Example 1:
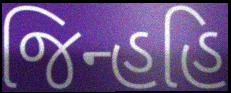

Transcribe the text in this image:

જિન્હહિ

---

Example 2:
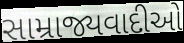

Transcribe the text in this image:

સામ્રાજ્યવાદીઓ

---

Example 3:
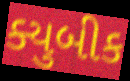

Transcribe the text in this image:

ક્યુબીક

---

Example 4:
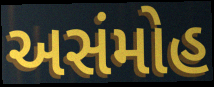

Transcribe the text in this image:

અસંમોહ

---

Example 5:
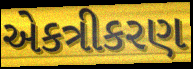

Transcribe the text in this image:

એકત્રીકરણ